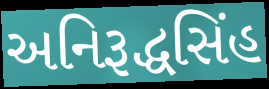
અનિરૂદ્ધસિંહ